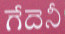
గేదెనీ